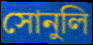
সোনুলি